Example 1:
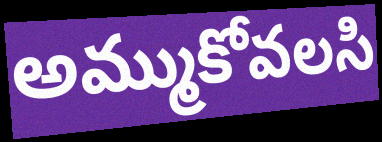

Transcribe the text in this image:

అమ్ముకోవలసి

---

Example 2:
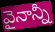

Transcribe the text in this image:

వైనాన్నీ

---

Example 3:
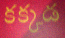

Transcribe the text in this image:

కక్కడ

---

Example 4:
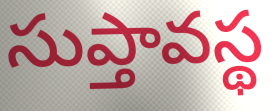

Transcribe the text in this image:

సుప్తావస్థ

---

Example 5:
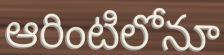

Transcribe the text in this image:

ఆరింటిలోనూ